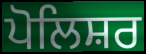
ਪੋਲਿਸ਼ਰ